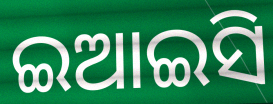
ଇଆଇସି